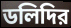
ডলিদির